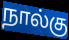
நால்கு